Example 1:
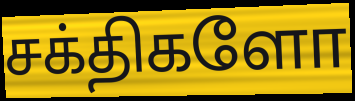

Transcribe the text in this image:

சக்திகளோ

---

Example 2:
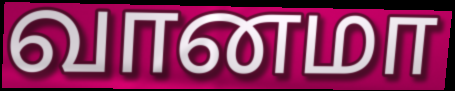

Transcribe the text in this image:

வானமா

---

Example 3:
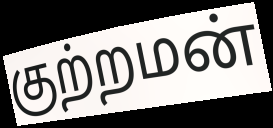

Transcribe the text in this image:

குற்றமன்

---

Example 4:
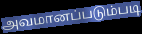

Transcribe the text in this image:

அவமானப்படும்படி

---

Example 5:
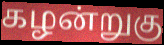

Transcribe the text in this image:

கழன்றுகு